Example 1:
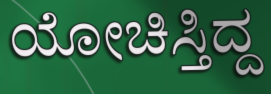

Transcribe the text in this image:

ಯೋಚಿಸ್ತಿದ್ದ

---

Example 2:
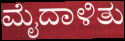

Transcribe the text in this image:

ಮೈದಾಳಿತು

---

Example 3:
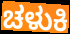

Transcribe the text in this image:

ಚಳುಕಿ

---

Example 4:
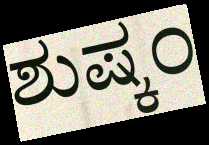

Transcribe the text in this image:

ಶುಷ್ಕಂ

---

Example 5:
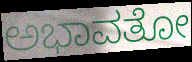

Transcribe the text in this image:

ಅಭಾವತೋ